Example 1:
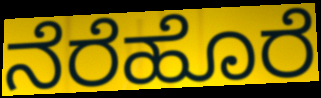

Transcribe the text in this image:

ನೆರೆಹೊರೆ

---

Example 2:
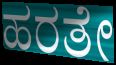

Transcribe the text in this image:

ಹರತೇ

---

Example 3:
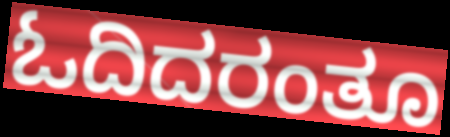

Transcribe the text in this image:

ಓದಿದರಂತೂ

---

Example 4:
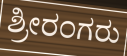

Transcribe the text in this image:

ಶ್ರೀರಂಗರು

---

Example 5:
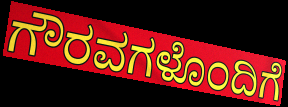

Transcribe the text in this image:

ಗೌರವಗಳೊಂದಿಗೆ